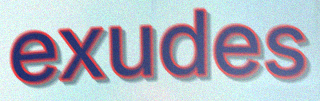
exudes